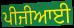
ਪੀਜੀਆਈ